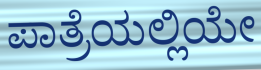
ಪಾತ್ರೆಯಲ್ಲಿಯೇ